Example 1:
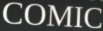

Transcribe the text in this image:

COMIC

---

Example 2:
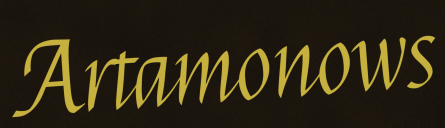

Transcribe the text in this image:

Artamonows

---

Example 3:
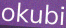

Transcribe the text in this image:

okubi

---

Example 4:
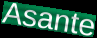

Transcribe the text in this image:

Asante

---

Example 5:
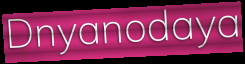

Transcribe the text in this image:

Dnyanodaya